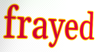
frayed